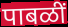
पाबळीं